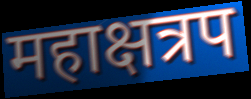
महाक्षत्रप